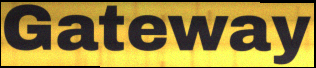
Gateway